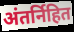
अंतर्निहित